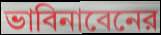
ভাবিনাবেনের